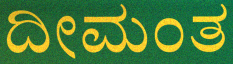
ದೀಮಂತ